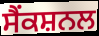
ਸੈਂਕਸ਼ਨਲ